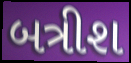
બત્રીશ